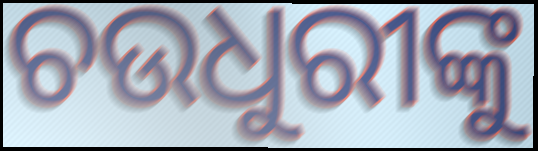
ଚଉଧୁରୀଙ୍କୁ